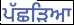
ਪੱਛੜਿਆ